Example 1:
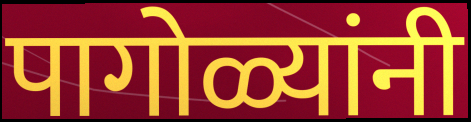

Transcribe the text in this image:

पागोळ्यांनी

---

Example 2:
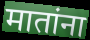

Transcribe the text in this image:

मातांना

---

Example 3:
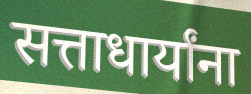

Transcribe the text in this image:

सत्ताधार्यांना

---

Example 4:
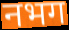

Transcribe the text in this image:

नभग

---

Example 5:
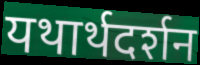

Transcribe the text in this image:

यथार्थदर्शन